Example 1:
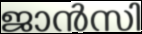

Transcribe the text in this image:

ജാൻസി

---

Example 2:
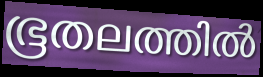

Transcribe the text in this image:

ഭൂതലത്തിൽ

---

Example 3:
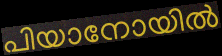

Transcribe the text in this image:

പിയാനോയിൽ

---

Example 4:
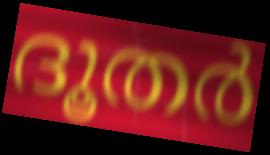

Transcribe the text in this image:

ദൂതർ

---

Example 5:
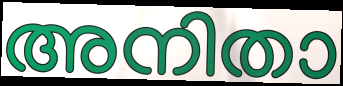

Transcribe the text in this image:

അനിതാ